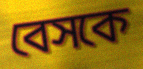
বেসকে